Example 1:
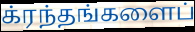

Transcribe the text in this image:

க்ரந்தங்களைப்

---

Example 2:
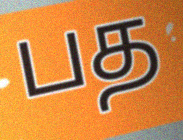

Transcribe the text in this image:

பத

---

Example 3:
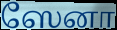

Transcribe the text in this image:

ஸேனா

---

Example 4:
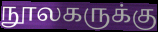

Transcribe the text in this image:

நூலகருக்கு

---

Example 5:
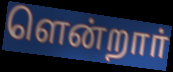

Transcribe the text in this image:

ளென்றார்